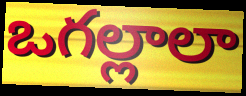
ఒగల్లాలా